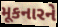
મૂકનારને